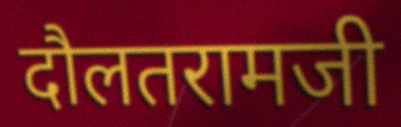
दौलतरामजी